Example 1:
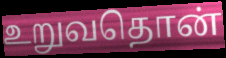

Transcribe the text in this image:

உறுவதொன்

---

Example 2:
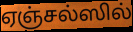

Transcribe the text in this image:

ஏஞ்சல்ஸில்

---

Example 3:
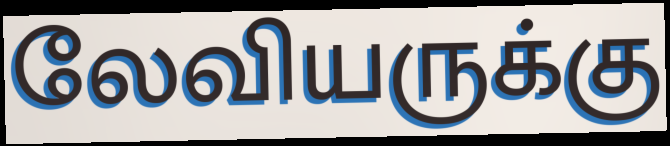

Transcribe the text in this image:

லேவியருக்கு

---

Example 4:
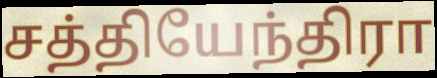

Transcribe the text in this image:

சத்தியேந்திரா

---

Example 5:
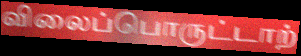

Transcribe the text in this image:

விலைப்பொருட்டாற்